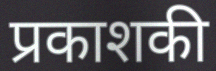
प्रकाशकी